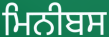
ਮਿਨੀਬਸ